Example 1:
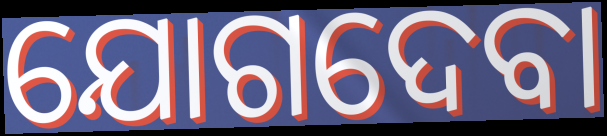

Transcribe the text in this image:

ଯୋଗଦେବା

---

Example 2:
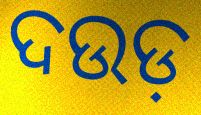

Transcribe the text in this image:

ଦଉଡ଼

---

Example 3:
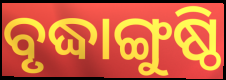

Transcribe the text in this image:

ବୃଦ୍ଧାଙ୍ଗୁଷ୍ଠି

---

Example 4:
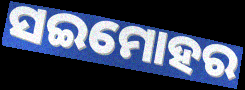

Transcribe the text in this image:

ସଇମୋହର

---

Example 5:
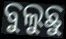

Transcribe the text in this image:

ବୁଲୁଛୁ